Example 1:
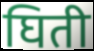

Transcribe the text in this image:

घिती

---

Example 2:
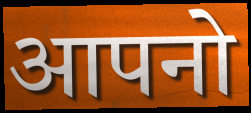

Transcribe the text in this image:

आपनो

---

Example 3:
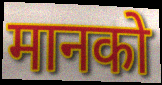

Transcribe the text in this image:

मानको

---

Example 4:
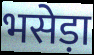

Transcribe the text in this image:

भसेड़ा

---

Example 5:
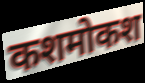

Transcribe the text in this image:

कशमोकश